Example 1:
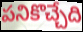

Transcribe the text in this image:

పనికొచ్చేది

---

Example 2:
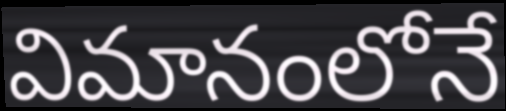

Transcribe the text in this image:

విమానంలోనే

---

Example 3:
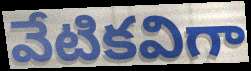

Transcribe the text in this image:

వేటికవిగా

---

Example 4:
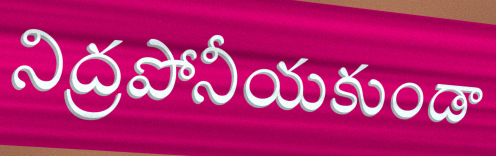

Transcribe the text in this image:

నిద్రపోనీయకుండా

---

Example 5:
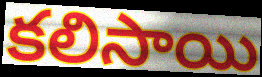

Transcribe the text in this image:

కలిసాయి